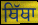
ਥਿੱਥਾ